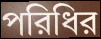
পরিধির